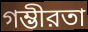
গম্ভীরতা